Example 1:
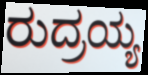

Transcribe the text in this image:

ರುದ್ರಯ್ಯ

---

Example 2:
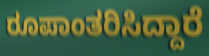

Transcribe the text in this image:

ರೂಪಾಂತರಿಸಿದ್ದಾರೆ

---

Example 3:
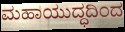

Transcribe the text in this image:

ಮಹಾಯುದ್ಧದಿಂದ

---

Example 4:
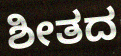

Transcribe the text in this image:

ಶೀತದ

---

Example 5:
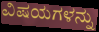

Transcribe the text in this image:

ವಿಷಯಗಳನ್ನು